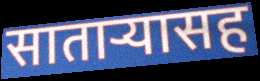
साताऱ्यासह